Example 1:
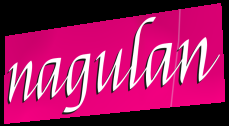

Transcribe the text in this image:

nagulan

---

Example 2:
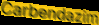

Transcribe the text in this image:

Carbendazim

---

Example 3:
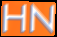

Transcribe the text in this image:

HN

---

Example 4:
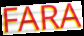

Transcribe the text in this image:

FARA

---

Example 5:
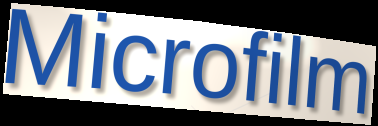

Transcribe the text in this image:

Microfilm